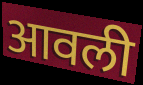
आवली